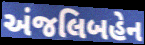
અંજલિબહેન